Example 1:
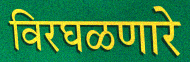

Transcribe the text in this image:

विरघळणारे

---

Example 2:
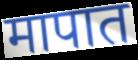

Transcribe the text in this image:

मापात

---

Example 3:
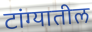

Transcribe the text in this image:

टांग्यातील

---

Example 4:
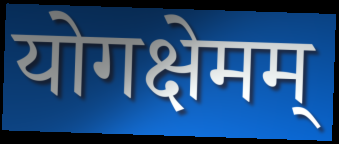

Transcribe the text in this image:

योगक्षेमम्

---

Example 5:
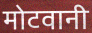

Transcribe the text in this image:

मोटवानी